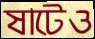
ষাটেও